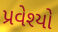
પ્રવેશ્યો